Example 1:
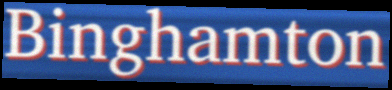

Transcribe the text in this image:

Binghamton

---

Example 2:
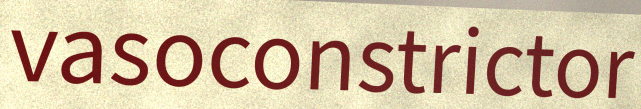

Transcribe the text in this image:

vasoconstrictor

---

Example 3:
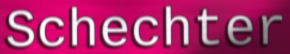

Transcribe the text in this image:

Schechter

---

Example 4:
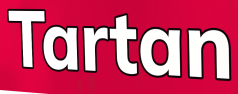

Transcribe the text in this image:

Tartan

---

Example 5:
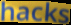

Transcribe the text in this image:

hacks